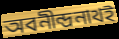
অবনীন্দ্রনাথই